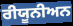
ਰੀਯੂਨੀਅਨ